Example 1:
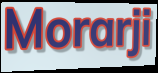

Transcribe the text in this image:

Morarji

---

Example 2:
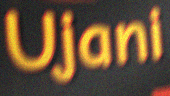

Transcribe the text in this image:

Ujani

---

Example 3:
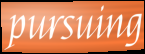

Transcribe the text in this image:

pursuing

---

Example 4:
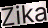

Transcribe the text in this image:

Zika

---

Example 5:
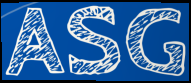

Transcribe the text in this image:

ASG